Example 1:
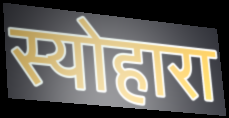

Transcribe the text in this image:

स्योहारा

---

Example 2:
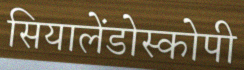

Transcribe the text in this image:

सियालेंडोस्कोपी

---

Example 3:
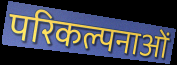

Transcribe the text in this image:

परिकल्पनाओं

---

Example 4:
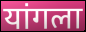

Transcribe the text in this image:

यांगला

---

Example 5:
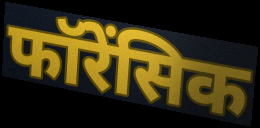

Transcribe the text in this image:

फॉरेंसिक